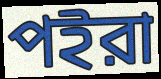
পইরা